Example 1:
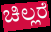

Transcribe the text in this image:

ಚಿಲ್ಲರೆ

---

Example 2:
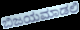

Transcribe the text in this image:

ಬಿಜಯಮಾಡಲಿ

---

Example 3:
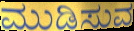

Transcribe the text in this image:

ಮುಡಿಸುವ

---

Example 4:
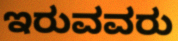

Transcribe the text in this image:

ಇರುವವರು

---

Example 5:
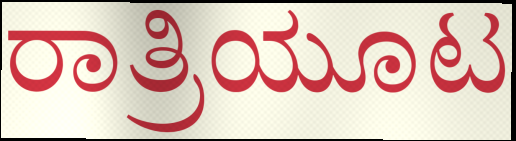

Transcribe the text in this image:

ರಾತ್ರಿಯೂಟ